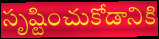
సృష్టించుకోడానికి